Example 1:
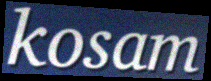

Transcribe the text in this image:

kosam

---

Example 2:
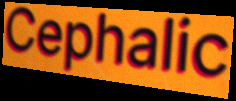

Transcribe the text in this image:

Cephalic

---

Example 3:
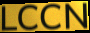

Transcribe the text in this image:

LCCN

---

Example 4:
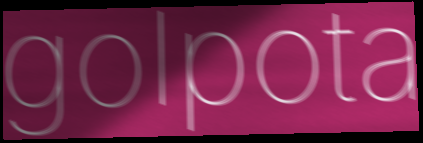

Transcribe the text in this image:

golpota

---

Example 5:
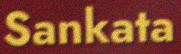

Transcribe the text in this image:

Sankata